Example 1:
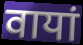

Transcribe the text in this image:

वायां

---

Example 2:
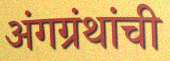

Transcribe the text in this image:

अंगग्रंथांची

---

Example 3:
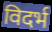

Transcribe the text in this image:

विदर्भ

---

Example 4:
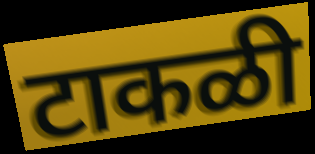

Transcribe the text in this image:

टाकळी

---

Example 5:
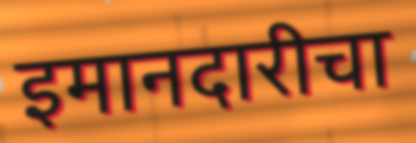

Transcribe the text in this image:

इमानदारीचा